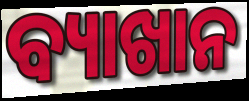
ବ୍ୟାଖାନ